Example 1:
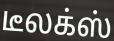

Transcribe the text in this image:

டீலக்ஸ்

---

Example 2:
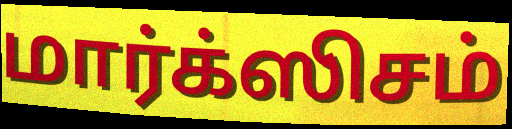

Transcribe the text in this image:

மார்க்ஸிசம்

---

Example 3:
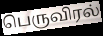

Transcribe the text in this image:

பெருவிரல்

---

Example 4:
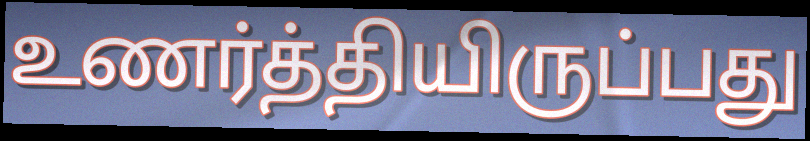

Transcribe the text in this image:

உணர்த்தியிருப்பது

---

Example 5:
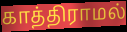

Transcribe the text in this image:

காத்திராமல்